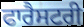
ਫਾਰੈਸਟਰੀ